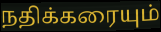
நதிக்கரையும்